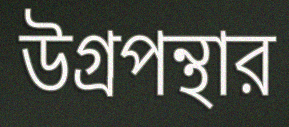
উগ্রপন্থার